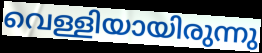
വെള്ളിയായിരുന്നു